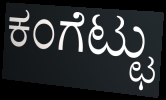
ಕಂಗೆಟ್ಟು